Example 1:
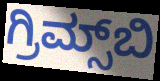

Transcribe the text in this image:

ಗ್ರಿಮ್ಸ್‌ಬಿ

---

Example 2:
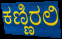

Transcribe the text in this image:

ಕಣ್ಣಿರಲಿ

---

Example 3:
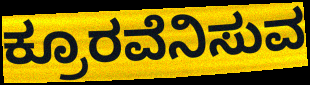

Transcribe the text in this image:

ಕ್ರೂರವೆನಿಸುವ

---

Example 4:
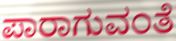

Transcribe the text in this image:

ಪಾರಾಗುವಂತೆ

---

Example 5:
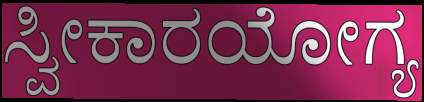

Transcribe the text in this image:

ಸ್ವೀಕಾರಯೋಗ್ಯ